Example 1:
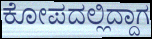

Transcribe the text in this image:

ಕೋಪದಲ್ಲಿದ್ದಾಗ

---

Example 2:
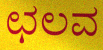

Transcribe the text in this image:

ಛಲವ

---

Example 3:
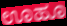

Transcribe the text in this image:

ಊಹೂ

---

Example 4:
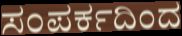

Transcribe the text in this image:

ಸಂಪರ್ಕದಿಂದ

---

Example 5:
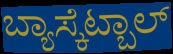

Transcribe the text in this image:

ಬ್ಯಾಸ್ಕೆಟ್ಬಾಲ್